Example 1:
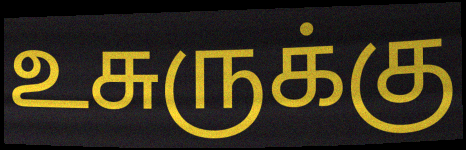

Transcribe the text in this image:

உசுருக்கு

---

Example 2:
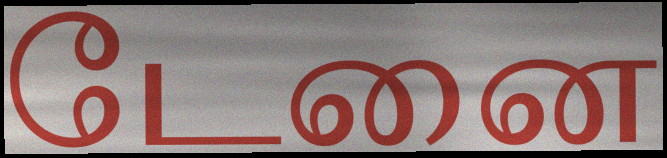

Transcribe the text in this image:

டேனை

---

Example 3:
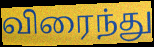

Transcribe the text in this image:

விரைந்து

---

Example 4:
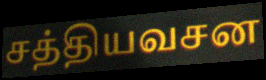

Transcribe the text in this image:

சத்தியவசன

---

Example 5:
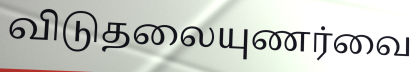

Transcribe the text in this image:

விடுதலையுணர்வை